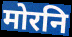
मोरनि